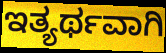
ಇತ್ಯರ್ಥವಾಗಿ